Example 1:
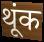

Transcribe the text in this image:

थूंक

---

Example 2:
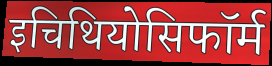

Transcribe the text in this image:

इचिथियोसिफॉर्म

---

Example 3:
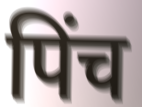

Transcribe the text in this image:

पिंच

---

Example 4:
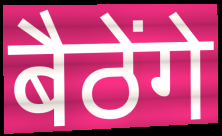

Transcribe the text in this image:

बैठेंगे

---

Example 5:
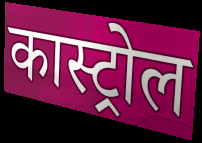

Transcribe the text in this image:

कास्ट्रोल